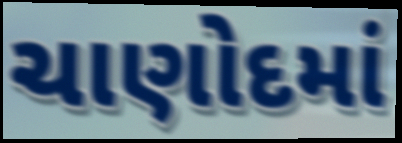
ચાણોદમાં